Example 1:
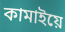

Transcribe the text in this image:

কামাইয়ে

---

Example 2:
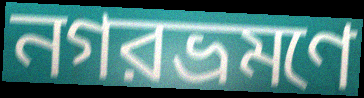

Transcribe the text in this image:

নগরভ্রমণে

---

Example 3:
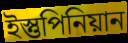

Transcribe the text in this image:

ইস্তুপিনিয়ান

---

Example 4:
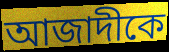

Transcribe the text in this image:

আজাদীকে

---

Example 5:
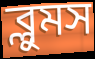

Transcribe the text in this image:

ব্লুমস